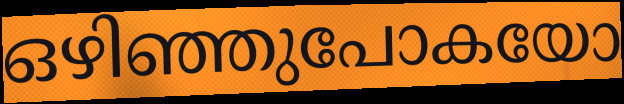
ഒഴിഞ്ഞുപോകയോ